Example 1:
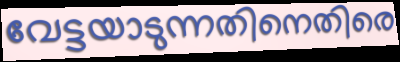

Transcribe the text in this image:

വേട്ടയാടുന്നതിനെതിരെ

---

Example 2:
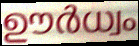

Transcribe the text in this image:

ഊർധ്വം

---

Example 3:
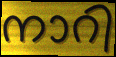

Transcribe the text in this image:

നാറി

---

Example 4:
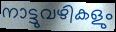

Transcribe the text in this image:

നാട്ടുവഴികളും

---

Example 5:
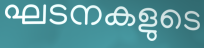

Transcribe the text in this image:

ഘടനകളുടെ